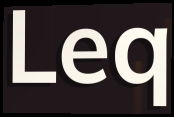
Leq